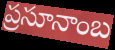
ప్రసూనాంబ